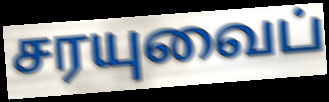
சரயுவைப்